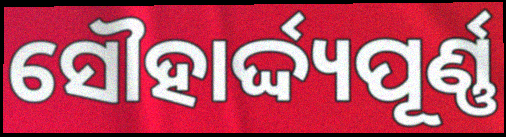
ସୌହାର୍ଦ୍ଦ୍ୟପୂର୍ଣ୍ଣ